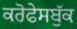
ਕਰੋਫੇਸਬੁੱਕ